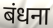
बंधना